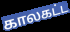
காலகட்ட